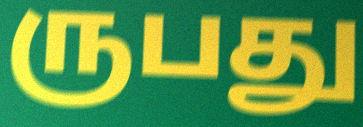
ருபது